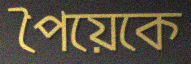
পৈয়েকে